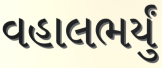
વહાલભર્યું